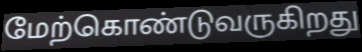
மேற்கொண்டுவருகிறது